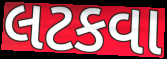
લટકવા